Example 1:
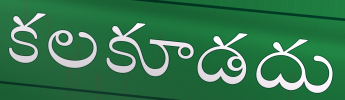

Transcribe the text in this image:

కలకూడదు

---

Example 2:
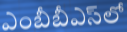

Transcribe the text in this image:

ఎంబీబీఎస్‌లో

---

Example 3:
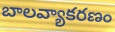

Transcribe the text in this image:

బాలవ్యాకరణం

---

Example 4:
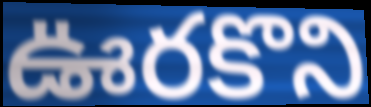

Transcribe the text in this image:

ఊరకొని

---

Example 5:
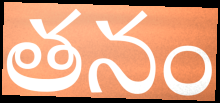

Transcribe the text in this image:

తనం